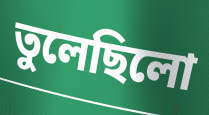
তুলেছিলো